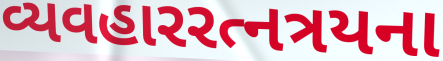
વ્યવહારરત્નત્રયના